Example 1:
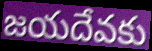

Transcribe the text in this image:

జయదేవకు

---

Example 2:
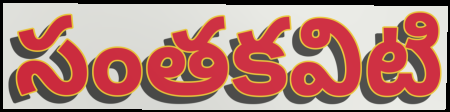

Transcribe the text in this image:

సంతకవిటి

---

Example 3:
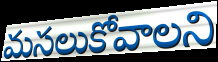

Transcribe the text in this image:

మసలుకోవాలని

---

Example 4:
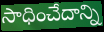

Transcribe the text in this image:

సాధించేదాన్ని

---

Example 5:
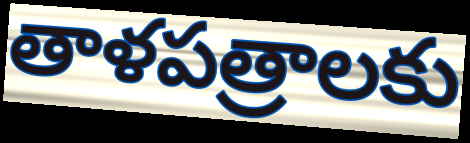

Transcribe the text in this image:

తాళపత్రాలకు